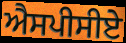
ਐਸਪੀਸੀਏ